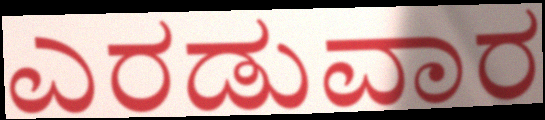
ಎರಡುವಾರ